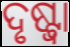
ଦୃଷ୍ଟ୍ବା